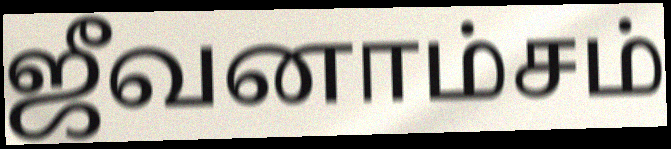
ஜீவனாம்சம்